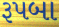
રૂપબા